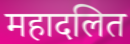
महादलित